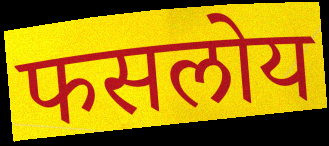
फसलोय